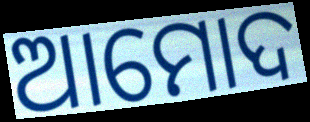
ଆମୋଦ